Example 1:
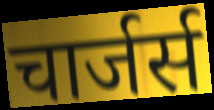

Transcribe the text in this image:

चार्जर्स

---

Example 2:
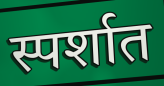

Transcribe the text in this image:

स्पर्शात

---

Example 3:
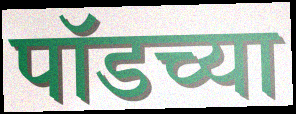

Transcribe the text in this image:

पॉडच्या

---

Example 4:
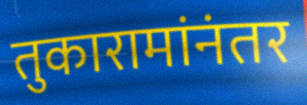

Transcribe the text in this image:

तुकारामांनंतर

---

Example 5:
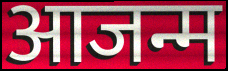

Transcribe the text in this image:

आजन्म